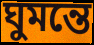
ঘুমন্তে